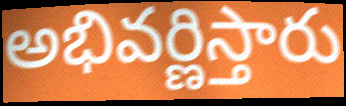
అభివర్ణిస్తారు